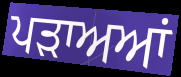
ਪੜਾਅਆਂ